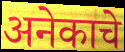
अनेकाचे